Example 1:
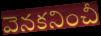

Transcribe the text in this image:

వెనకనించీ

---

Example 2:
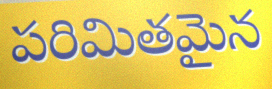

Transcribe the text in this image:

పరిమితమైన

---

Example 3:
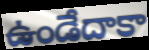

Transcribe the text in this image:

ఉండేదాకా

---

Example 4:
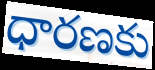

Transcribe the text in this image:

ధారణకు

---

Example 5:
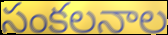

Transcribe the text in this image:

సంకలనాల